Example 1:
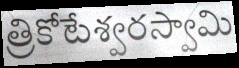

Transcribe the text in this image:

త్రికోటేశ్వరస్వామి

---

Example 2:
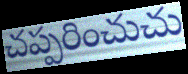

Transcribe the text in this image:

చప్పరించుచు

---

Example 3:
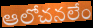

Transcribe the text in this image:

ఆలోచనలేం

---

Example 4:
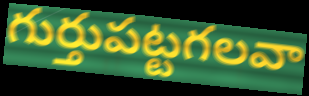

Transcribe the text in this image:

గుర్తుపట్టగలవా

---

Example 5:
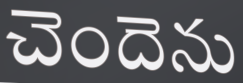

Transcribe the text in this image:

చెందెను